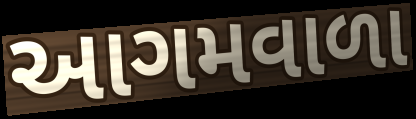
આગમવાળા